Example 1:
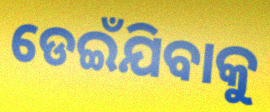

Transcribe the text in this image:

ଡେଇଁଯିବାକୁ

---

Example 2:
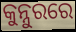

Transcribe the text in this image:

କୁନ୍ନୁରରେ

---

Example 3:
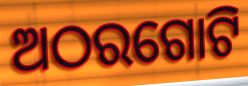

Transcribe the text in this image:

ଅଠରଗୋଟି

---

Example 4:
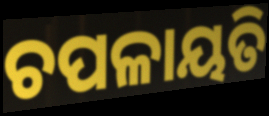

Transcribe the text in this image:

ଚପଳାୟତି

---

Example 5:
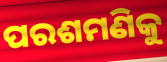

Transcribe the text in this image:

ପରଶମଣିକୁ